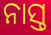
ନାସ୍ତ